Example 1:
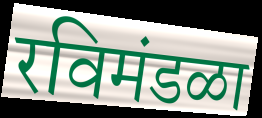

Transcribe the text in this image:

रविमंडळा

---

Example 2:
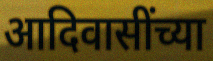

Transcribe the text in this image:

आदिवासींच्या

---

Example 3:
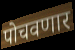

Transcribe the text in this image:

पोचवणार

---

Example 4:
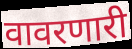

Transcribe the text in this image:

वावरणारी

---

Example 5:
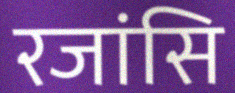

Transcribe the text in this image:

रजांसि